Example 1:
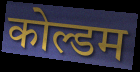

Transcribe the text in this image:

कोल्डम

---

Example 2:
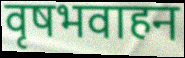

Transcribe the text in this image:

वृषभवाहन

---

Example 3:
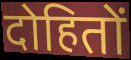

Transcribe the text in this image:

दोहितों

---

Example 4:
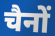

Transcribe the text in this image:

चैनों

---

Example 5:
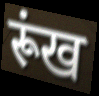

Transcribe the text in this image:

रूंख